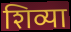
शिव्या